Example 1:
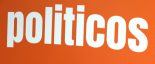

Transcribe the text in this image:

politicos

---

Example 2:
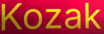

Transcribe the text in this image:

Kozak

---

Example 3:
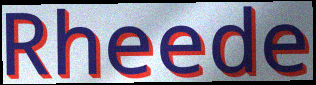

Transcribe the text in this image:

Rheede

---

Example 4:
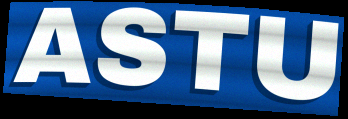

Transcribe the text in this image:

ASTU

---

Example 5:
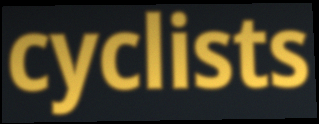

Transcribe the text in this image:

cyclists